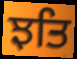
ਝਤਿ